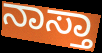
ನಾಸ್ತಾ